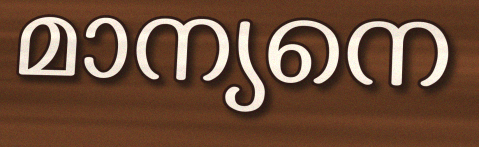
മാന്യനെ